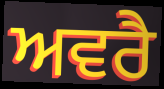
ਅਵਰੈ